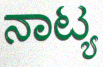
ನಾಟ್ಯ